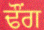
ਢੌਂਗ